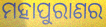
ମହାପୁରାଣର